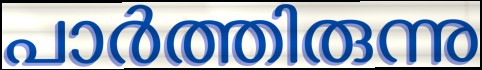
പാർത്തിരുന്നു